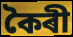
কৈৰী